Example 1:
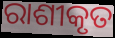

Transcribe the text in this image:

ରାଶୀକୃତ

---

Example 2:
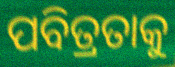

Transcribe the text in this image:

ପବିତ୍ରତାକୁ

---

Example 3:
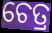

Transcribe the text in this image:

ଚେତ୍ର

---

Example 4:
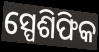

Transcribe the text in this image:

ସ୍ପେଶିଫିକ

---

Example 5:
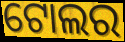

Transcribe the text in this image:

ଟୋଲର